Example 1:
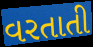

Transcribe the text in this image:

વરતાતી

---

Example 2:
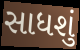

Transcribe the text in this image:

સાધશું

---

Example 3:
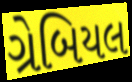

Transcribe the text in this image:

ગ્રેબિયલ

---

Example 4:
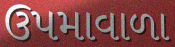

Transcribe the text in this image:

ઉપમાવાળા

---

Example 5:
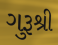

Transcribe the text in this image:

ગુરૂશ્રી